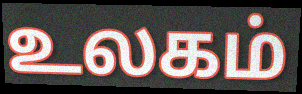
உலகம்